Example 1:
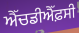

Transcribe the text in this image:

ਐੱਚਡੀਐੱਫ਼ਸੀ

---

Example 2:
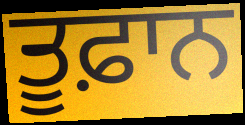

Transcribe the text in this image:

ਤੂਫ਼ਾਨ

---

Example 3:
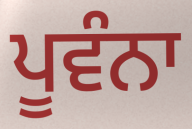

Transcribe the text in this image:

ਪੂਵੰਨਾ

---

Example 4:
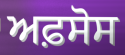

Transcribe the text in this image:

ਅਫ਼ਸੋਸ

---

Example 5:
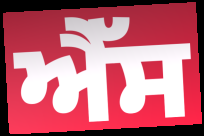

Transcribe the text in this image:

ਐੱਸ